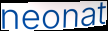
neonat